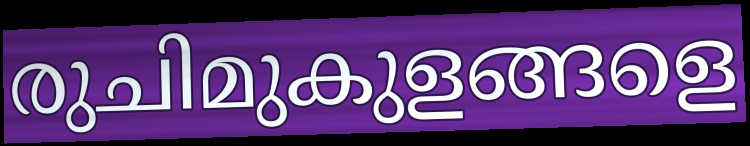
രുചിമുകുളങ്ങളെ